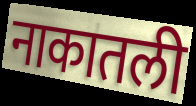
नाकातली